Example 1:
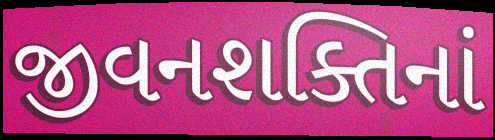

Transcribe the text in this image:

જીવનશક્તિનાં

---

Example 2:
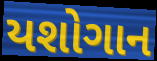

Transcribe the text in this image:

યશોગાન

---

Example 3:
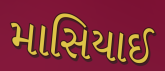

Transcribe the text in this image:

માસિયાઈ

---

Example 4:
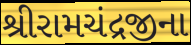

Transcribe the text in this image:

શ્રીરામચંદ્રજીના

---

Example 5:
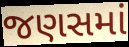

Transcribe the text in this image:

જણસમાં